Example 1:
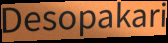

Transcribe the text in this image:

Desopakari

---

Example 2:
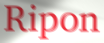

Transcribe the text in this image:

Ripon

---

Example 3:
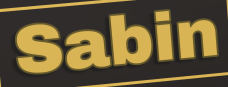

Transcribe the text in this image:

Sabin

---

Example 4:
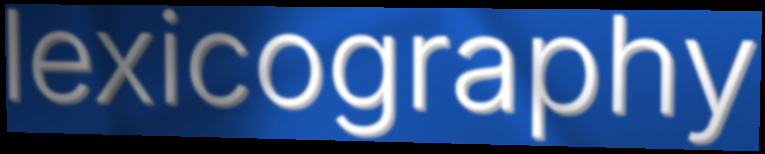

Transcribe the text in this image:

lexicography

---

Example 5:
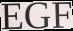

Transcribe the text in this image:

EGF